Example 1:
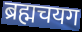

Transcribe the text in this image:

ब्रह्मचयग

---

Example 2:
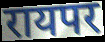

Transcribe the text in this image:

रायपर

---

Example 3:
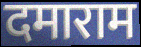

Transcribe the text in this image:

दमाराम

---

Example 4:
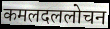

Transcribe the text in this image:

कमलदललोचन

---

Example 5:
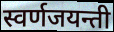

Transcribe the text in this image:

स्वर्णजयन्ती